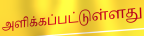
அளிக்கப்பட்டுள்ளது